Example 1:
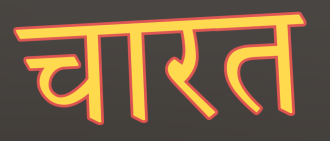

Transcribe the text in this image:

चारत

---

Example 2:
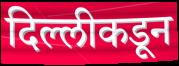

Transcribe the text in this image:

दिल्लीकडून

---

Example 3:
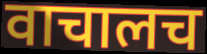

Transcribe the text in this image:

वाचालच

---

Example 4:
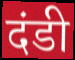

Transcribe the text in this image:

दंडी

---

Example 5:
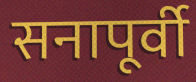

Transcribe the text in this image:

सनापूर्वी